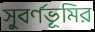
সুবর্ণভূমির